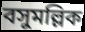
বসুমল্লিক